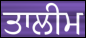
ਤਾਲੀਮ